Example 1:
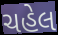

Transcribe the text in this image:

ચહેલ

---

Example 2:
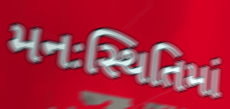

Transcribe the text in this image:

મનઃસ્થિતિમાં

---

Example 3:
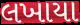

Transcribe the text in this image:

લખાયા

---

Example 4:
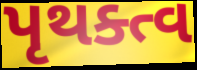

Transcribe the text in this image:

પૃથક્ત્વ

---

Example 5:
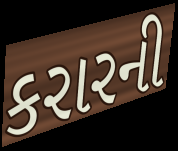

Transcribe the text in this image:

કરારની